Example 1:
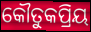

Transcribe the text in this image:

କୌତୁକପ୍ରିୟ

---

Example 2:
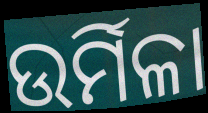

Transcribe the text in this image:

ଉର୍ମିଳା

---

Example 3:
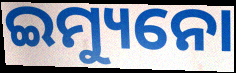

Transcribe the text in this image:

ଇମ୍ୟୁନୋ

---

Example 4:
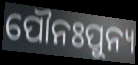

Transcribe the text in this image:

ପୌନଃପୁନ୍ୟ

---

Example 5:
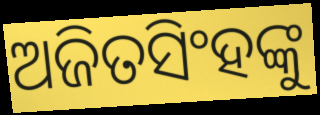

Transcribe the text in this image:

ଅଜିତସିଂହଙ୍କୁ